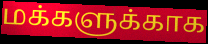
மக்களுக்காக